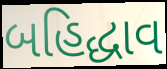
બહિદ્ધાવ